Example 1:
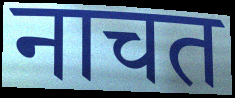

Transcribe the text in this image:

नाचत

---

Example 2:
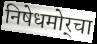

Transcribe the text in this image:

निषेधमोर्चा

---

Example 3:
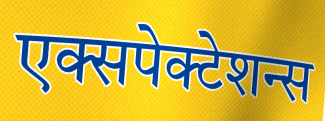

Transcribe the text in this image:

एक्सपेक्टेशन्स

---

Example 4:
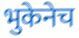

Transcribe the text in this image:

भुकेनेच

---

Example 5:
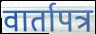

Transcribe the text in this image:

वार्तापत्र